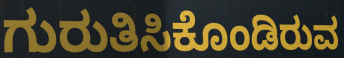
ಗುರುತಿಸಿಕೊಂಡಿರುವ